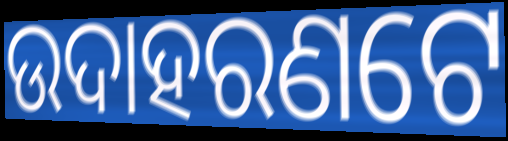
ଉଦାହରଣଟେ